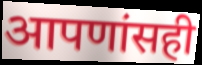
आपणांसही